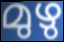
മുഴു